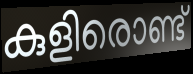
കുളിരൊണ്ട്